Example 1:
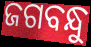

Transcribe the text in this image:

ଜଗବନ୍ଧୁ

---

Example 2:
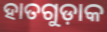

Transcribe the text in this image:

ହାତଗୁଡ଼ାକ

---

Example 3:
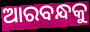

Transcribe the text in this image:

ଆରବନ୍ଧକୁ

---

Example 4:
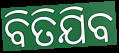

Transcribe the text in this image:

ବିତିଯିବ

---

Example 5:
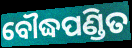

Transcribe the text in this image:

ବୌଦ୍ଧପଣ୍ଡିତ